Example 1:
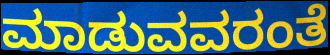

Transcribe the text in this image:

ಮಾಡುವವರಂತೆ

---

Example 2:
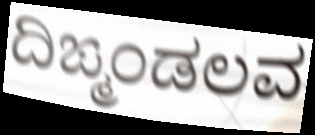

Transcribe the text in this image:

ದಿಙ್ಮಂಡಲವ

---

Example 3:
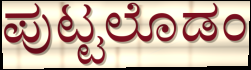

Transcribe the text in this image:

ಪುಟ್ಟಲೊಡಂ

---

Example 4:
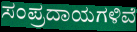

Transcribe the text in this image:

ಸಂಪ್ರದಾಯಗಳಿವೆ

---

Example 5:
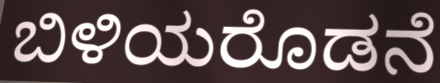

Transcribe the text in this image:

ಬಿಳಿಯರೊಡನೆ